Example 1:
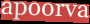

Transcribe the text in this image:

apoorva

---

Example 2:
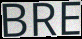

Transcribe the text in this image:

BRE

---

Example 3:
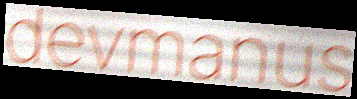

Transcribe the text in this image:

devmanus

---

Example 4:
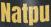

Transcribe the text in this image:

Natpu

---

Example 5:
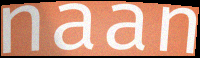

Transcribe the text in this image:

naan